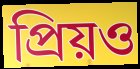
প্রিয়ও